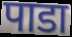
पाडा